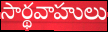
సార్థవాహులు